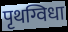
पृथग्विधा